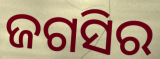
ଜଗସିର